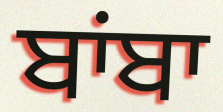
ਬਾਂਬਾ